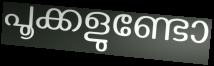
പൂക്കളുണ്ടോ